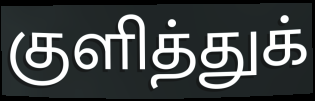
குளித்துக்